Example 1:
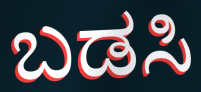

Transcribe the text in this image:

ಬಡಸಿ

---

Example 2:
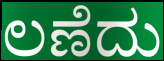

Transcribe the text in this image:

ಲಣೆದು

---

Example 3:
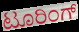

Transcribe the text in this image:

ಟೂರಿಂಗ್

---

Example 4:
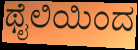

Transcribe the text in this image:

ಥೈಲಿಯಿಂದ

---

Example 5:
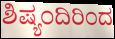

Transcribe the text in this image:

ಶಿಷ್ಯಂದಿರಿಂದ